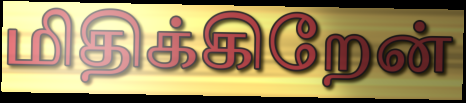
மிதிக்கிறேன்